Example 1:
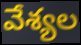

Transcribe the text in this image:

వేశ్యల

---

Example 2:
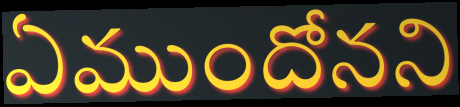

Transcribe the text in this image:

ఏముందోనని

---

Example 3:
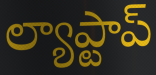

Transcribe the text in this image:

ల్యాప్టాప్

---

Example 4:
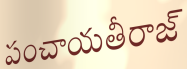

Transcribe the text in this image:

పంచాయతీరాజ్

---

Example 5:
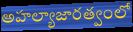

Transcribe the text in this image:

అహల్యాజారత్వంలో